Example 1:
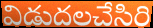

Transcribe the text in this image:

విడుదలచేసిరి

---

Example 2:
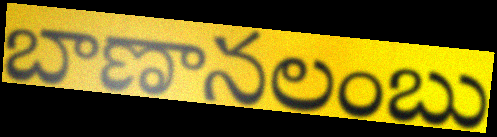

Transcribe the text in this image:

బాణానలంబు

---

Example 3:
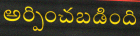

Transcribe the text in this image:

అర్పించబడింది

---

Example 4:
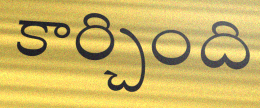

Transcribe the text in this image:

కార్చింది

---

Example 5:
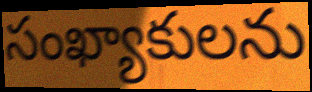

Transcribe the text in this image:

సంఖ్యాకులను